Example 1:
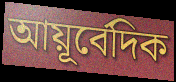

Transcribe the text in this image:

আয়ূর্বেদিক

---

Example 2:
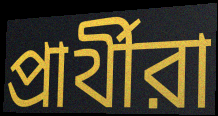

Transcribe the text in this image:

প্রার্থীরা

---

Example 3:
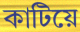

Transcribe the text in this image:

কাটিয়ে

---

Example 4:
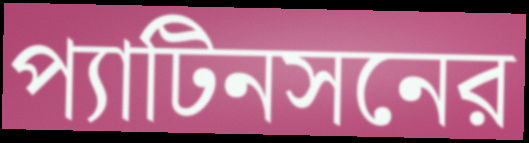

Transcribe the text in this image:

প্যাটিনসনের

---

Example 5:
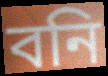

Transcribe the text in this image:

বনি